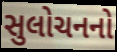
સુલોચનનો